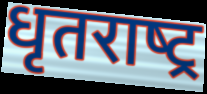
धृतराष्ट्र